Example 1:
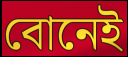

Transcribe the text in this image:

বোনেই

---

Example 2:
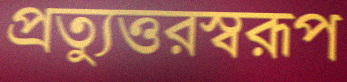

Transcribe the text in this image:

প্রত্যুত্তরস্বরূপ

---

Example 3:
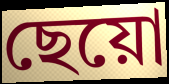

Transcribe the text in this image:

ছেয়ো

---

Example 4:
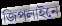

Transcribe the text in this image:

জিপলাইনে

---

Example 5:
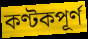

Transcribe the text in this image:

কণ্টকপূর্ণ